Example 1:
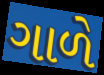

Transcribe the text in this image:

ગાળે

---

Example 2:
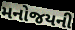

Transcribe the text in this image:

મનોજયની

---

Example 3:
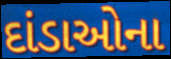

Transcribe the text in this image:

દાંડાઓના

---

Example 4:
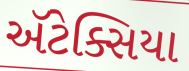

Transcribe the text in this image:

ઍટેક્સિયા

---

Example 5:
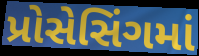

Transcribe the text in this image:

પ્રોસેસિંગમાં